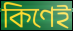
কিণেই